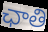
ఛాతి